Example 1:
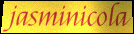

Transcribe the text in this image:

jasminicola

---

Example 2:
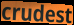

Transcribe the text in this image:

crudest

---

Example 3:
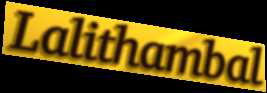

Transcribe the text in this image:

Lalithambal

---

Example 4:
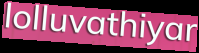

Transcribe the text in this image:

lolluvathiyar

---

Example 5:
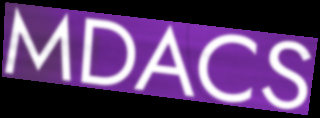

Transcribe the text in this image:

MDACS